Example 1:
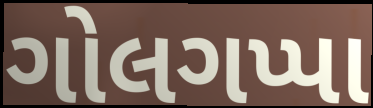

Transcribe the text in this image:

ગોલગપ્પા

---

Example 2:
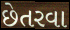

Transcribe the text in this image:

છેતરવા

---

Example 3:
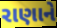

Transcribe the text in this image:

રાણાને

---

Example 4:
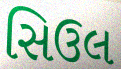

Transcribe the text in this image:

સિઉલ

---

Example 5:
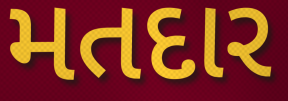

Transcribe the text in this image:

મતદાર